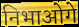
निभाओगे